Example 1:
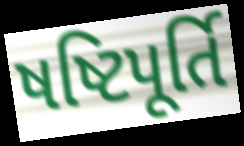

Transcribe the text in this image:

ષષ્ટિપૂર્તિ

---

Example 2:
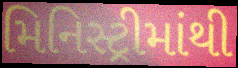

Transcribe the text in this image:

મિનિસ્ટ્રીમાંથી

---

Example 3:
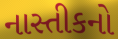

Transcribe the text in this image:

નાસ્તીકનો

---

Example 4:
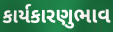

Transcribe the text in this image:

કાર્યકારણુભાવ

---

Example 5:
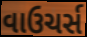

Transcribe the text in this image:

વાઉચર્સ